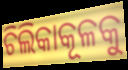
ଚିଲିକାକୂଳକୁ